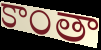
కాంతా